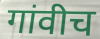
गांवीच